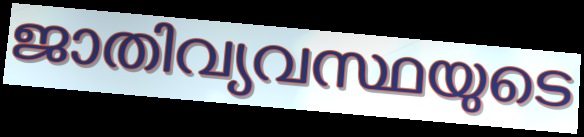
ജാതിവ്യവസ്ഥയുടെ